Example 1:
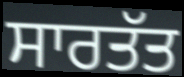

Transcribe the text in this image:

ਸਾਰਤੱਤ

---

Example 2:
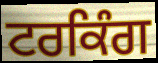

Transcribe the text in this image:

ਟਰਕਿੰਗ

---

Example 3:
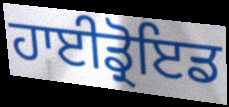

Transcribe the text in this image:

ਹਾਈਡ੍ਰੋਇਡ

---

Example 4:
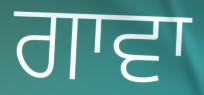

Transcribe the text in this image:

ਗਾਵਾ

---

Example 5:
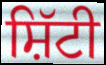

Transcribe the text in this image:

ਸ਼ਿੱਟੀ